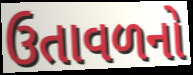
ઉતાવળનો